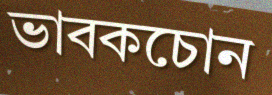
ভাবকচোন